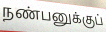
நண்பனுக்குப்